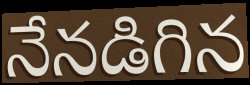
నేనడిగిన